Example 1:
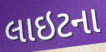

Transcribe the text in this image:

લાઇટના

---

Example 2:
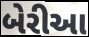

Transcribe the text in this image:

બેરીઆ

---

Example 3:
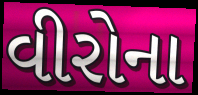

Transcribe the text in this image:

વીરોના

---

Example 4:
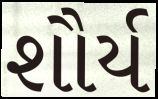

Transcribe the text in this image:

શૌર્ય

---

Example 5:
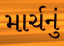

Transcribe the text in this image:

માર્ચનું